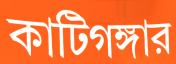
কাটিগঙ্গার